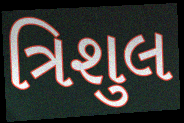
ત્રિશુલ